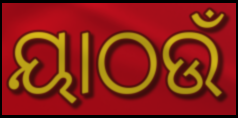
ୟାଠଉଁ